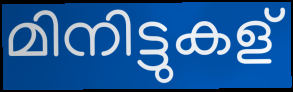
മിനിട്ടുകള്